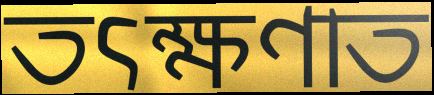
তৎক্ষণাত